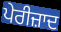
ਪੇਰੀਜ਼ਾਦ